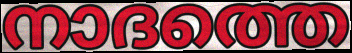
നാദത്തെ